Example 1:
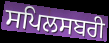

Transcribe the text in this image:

ਸਪਿਲਸਬਰੀ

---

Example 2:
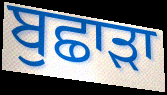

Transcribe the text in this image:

ਬੁਛਾੜਾ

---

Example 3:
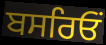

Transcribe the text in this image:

ਬਸਰਿਓਂ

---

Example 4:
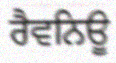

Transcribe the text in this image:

ਰੈਵਨਿਊ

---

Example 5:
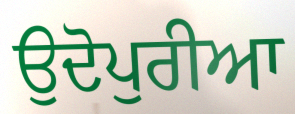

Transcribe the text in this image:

ਉਦੋਪੁਰੀਆ